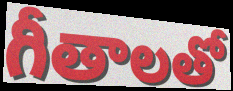
గీతాలతో